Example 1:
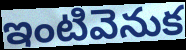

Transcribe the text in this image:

ఇంటివెనుక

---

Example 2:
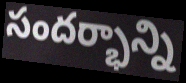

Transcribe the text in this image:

సందర్భాన్ని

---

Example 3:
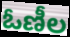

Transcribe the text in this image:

ఓణీల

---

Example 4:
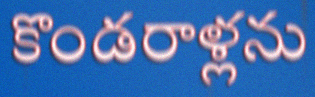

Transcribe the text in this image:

కొండరాళ్లను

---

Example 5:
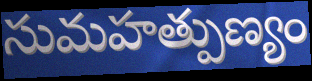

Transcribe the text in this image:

సుమహత్పుణ్యం